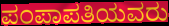
ಪಂಪಾಪತಿಯವರು